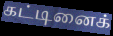
கட்டினைக்